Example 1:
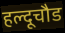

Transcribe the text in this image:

हल्दूचौड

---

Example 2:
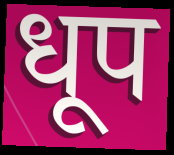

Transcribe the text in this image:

धूप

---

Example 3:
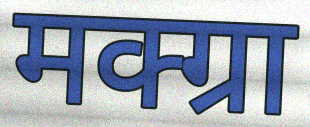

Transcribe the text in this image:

मक्ग्रा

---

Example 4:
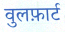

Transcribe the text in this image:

वुलफ़ार्ट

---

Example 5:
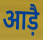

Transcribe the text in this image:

आड़ै